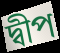
দ্বীপ